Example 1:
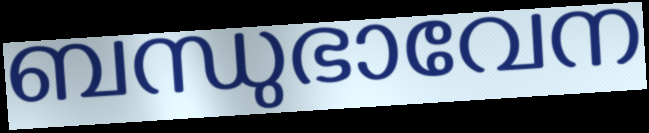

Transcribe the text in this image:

ബന്ധുഭാവേന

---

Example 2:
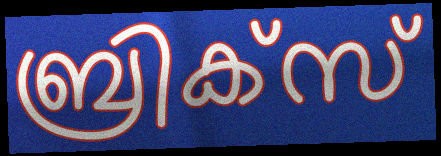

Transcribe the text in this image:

ബ്രിക്സ്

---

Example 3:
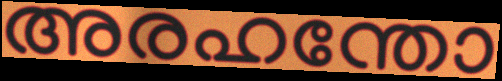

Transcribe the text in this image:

അരഹന്തോ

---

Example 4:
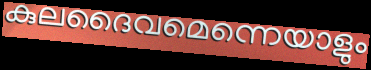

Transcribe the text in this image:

കുലദൈവമെന്നെയാളും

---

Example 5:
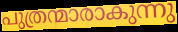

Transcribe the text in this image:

പുത്രന്മാരാകുന്നു